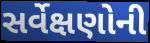
સર્વેક્ષણોની